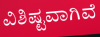
ವಿಶಿಷ್ಟವಾಗಿವೆ